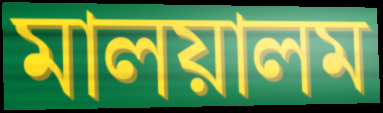
মালয়ালম